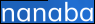
nanaba